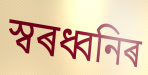
স্বৰধ্বনিৰ